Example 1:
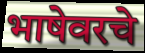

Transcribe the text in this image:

भाषेवरचे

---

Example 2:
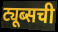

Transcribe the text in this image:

ट्यूब्सची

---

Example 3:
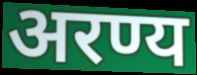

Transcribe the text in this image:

अरण्य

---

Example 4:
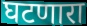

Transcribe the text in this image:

घटणारा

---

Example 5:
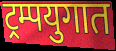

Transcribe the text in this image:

ट्रम्पयुगात